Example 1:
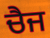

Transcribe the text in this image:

ਚੈਜ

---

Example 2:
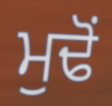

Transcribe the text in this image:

ਮੁਢੋਂ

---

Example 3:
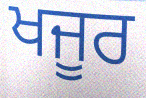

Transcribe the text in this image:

ਖਜੂਰ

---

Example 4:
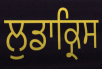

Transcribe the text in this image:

ਲੁਡਾਕ੍ਰਿਸ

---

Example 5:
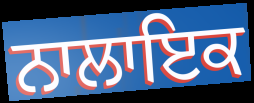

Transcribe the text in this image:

ਨਾਲਾਇਕ